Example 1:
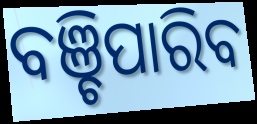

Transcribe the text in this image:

ବଞ୍ଚିପାରିବ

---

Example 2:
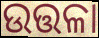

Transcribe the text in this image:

ଉତ୍ତଳା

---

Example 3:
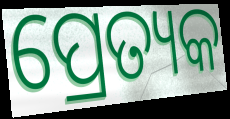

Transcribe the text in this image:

ପ୍ରେତ୍ୟକ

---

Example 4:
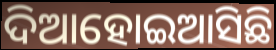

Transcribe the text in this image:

ଦିଆହୋଇଆସିଛି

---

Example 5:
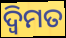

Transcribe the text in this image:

ଦ୍ୱିମତ